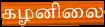
கழனிலை